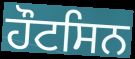
ਹੌਟਸਿਨ